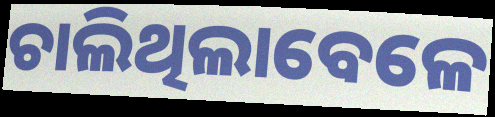
ଚାଲିଥିଲାବେଳେ